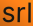
srl